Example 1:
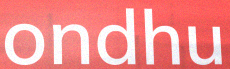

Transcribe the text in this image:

ondhu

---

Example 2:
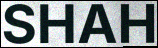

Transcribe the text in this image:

SHAH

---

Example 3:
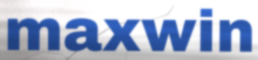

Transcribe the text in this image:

maxwin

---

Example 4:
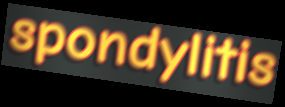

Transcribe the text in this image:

spondylitis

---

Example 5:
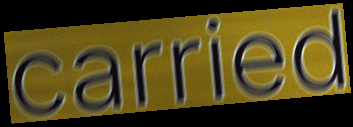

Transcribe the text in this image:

carried